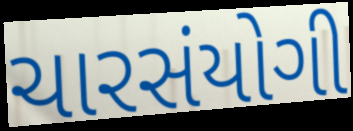
ચારસંયોગી